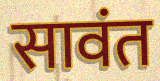
सावंत